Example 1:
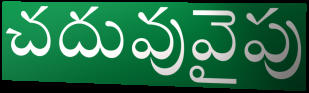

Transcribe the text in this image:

చదువువైపు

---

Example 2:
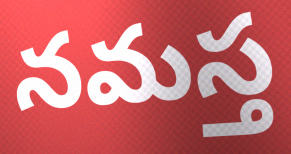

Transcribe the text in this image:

నమస్త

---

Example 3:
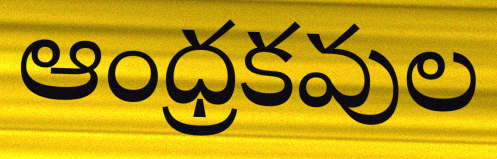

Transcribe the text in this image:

ఆంధ్రకవుల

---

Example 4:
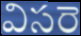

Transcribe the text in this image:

విసరె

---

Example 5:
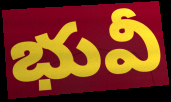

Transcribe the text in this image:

భువీ